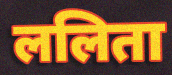
ललिता